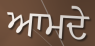
ਆਮਦੇ